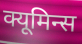
क्यूमिन्स